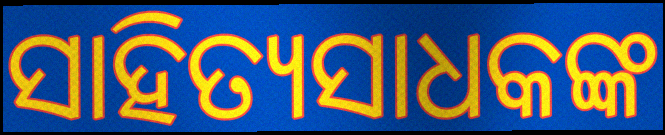
ସାହିତ୍ୟସାଧକଙ୍କ